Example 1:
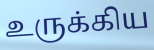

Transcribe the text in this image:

உருக்கிய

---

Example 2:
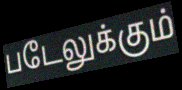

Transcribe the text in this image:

படேலுக்கும்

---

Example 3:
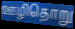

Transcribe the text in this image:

ஊழிதொறு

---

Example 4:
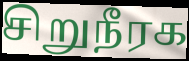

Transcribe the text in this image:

சிறுநீரக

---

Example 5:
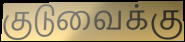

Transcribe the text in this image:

குடுவைக்கு